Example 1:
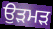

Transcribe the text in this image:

ਉੜਮੜ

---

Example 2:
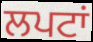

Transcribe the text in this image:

ਲਪਟਾਂ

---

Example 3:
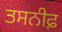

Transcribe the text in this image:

ਤਸਨੀਫ਼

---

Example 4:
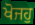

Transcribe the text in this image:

ਖੋਜਹੁ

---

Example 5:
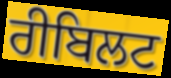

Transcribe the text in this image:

ਰੀਬਿਲਟ